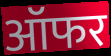
ऑफर